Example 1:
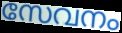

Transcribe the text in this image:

സേവനം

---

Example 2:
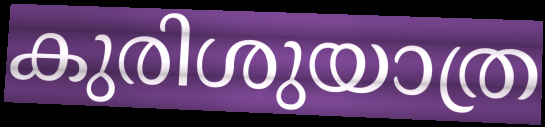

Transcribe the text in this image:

കുരിശുയാത്ര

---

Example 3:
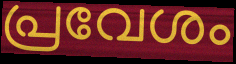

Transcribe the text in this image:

പ്രവേശം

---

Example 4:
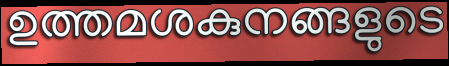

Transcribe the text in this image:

ഉത്തമശകുനങ്ങളുടെ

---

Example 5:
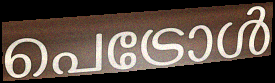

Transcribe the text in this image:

പെട്രോൾ